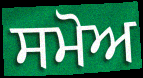
ਸਮੋਅ